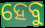
ହେବୁ